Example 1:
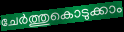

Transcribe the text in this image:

ചേർത്തുകൊടുക്കാം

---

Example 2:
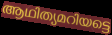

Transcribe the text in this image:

ആഥിത്യമറിയട്ടെ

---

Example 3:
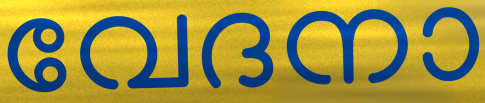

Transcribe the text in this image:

വേദനാ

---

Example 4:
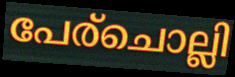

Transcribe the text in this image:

പേര്ചൊല്ലി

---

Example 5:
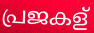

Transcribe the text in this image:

പ്രജകള്